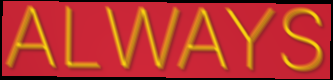
ALWAYS